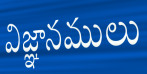
విజ్ఞానములు